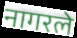
नागरले